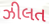
ઝીલત